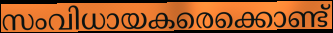
സംവിധായകരെക്കൊണ്ട്